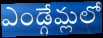
ఎండ్గేమ్లలో